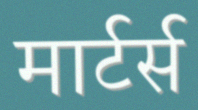
मार्टर्स